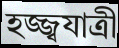
হজ্জ্বযাত্রী